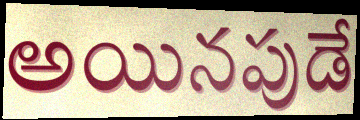
అయినపుడే